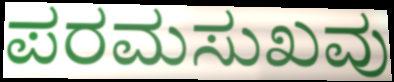
ಪರಮಸುಖವು